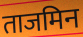
ताजमिन